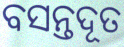
ବସନ୍ତଦୂତ